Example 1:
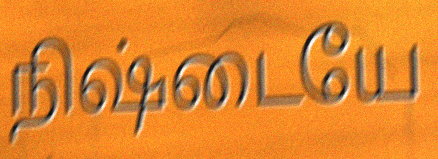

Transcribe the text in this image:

நிஷ்டையே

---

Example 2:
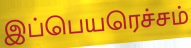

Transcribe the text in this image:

இப்பெயரெச்சம்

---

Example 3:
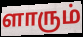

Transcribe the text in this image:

ளாரும்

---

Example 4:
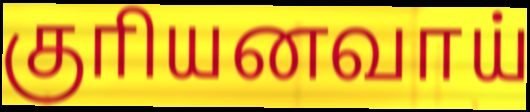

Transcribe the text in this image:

குரியனவாய்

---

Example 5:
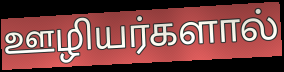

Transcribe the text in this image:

ஊழியர்களால்